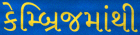
કેમ્બ્રિજમાંથી